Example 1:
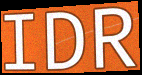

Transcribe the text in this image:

IDR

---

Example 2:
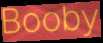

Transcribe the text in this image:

Booby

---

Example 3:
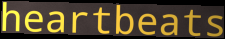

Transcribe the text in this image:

heartbeats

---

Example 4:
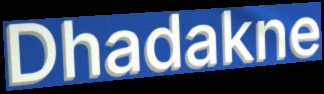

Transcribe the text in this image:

Dhadakne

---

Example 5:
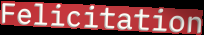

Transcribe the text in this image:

Felicitation